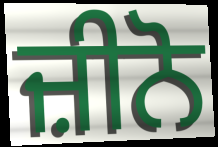
ਜ਼ੀਨੋ